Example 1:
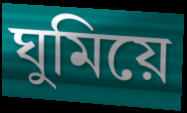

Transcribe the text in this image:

ঘুমিয়ে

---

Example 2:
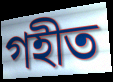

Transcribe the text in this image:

গহীত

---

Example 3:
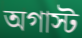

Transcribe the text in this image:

অগাস্ট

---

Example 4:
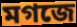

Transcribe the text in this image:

মগজে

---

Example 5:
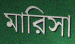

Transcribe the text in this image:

মারিসা